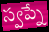
స్వప్నే